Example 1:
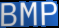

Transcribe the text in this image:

BMP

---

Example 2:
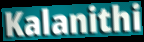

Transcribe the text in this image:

Kalanithi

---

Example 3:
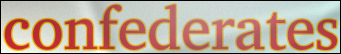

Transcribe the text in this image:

confederates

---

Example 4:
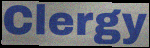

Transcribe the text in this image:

Clergy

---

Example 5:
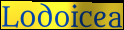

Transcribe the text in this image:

Lodoicea